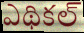
ఎథికల్